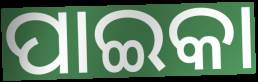
ପାଇକା